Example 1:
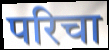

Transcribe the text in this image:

परिचा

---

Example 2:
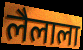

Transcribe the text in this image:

लैलाला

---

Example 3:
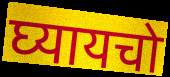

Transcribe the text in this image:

घ्यायचो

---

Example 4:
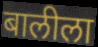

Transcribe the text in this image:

बालीला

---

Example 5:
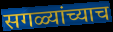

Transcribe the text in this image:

सगळ्यांच्याच